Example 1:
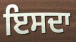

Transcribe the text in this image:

ਇਸਦਾ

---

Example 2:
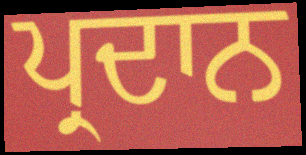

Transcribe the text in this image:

ਪ੍ਰਦਾਨ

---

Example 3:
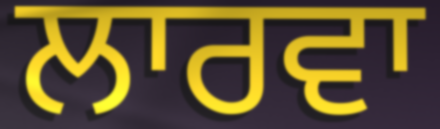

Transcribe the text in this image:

ਲਾਰਵਾ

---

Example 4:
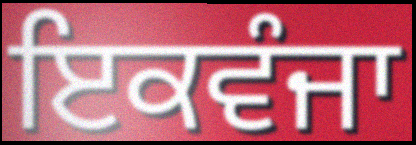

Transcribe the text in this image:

ਇਕਵੰਜਾ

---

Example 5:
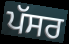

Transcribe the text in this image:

ਪੱਸਰ